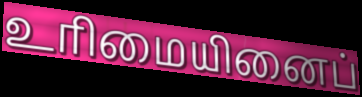
உரிமையினைப்